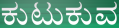
ಕುಟುಕುವ